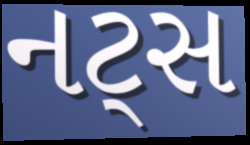
નટ્સ